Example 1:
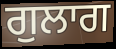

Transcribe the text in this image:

ਗੁਲਾਗ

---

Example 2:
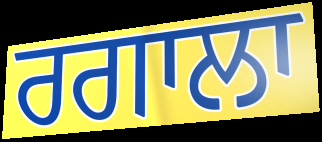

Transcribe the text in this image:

ਰਗਾਲਾ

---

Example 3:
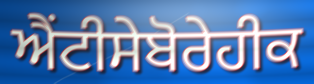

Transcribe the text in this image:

ਐਂਟੀਸੇਬੋਰੇਹੀਕ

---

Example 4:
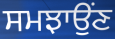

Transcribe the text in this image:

ਸਮਝਾਉਂਣ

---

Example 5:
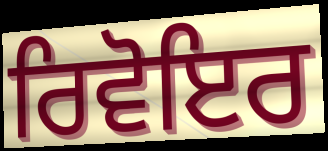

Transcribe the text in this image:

ਰਿਵੋਇਰ